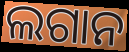
ଲଗାନ